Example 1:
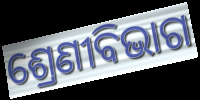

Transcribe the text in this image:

ଶ୍ରେଣୀବିଭାଗ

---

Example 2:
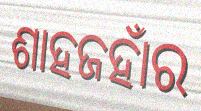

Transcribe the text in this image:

ଶାହଜହାଁର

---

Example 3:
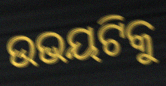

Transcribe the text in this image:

ଉଭୟଟିକୁ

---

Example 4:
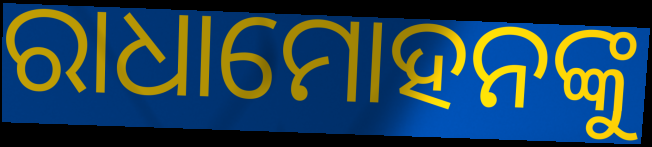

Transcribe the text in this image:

ରାଧାମୋହନଙ୍କୁ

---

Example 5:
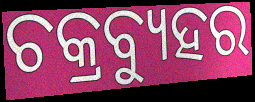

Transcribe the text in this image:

ଚକ୍ରବ୍ୟୁହର